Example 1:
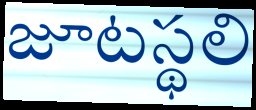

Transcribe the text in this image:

జూటస్థలి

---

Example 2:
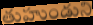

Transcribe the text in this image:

తుహుండుని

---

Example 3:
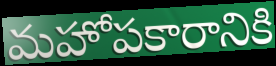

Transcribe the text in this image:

మహోపకారానికి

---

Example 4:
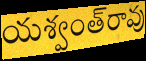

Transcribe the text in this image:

యశ్వంత్‌రావు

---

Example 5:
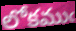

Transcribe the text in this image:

లోకముఁ